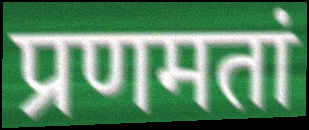
प्रणमतां